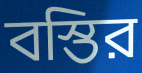
বস্তির